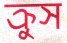
ক্রুস